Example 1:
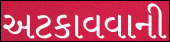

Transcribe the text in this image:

અટકાવવાની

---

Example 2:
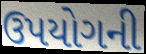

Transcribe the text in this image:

ઉપયોગની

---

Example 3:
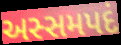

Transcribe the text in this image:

અસ્સમપદં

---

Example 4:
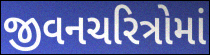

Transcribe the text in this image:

જીવનચરિત્રોમાં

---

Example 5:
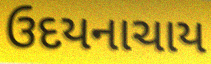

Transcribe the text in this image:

ઉદયનાચાય